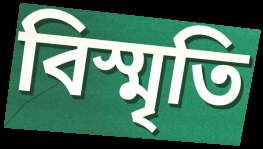
বিস্মৃতি